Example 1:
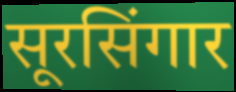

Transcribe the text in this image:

सूरसिंगार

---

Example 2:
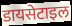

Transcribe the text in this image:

डायसेटाइल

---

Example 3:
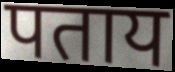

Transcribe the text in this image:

पताय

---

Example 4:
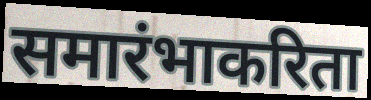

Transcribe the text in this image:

समारंभाकरिता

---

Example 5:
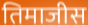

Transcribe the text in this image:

तिमाजीस